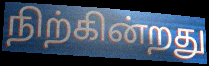
நிற்கின்றது